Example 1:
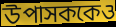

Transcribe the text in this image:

উপাসককেও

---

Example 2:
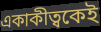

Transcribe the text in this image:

একাকীত্বকেই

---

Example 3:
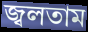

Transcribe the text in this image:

জ্বলতাম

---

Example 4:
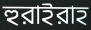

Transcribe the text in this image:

হুরাইরাহ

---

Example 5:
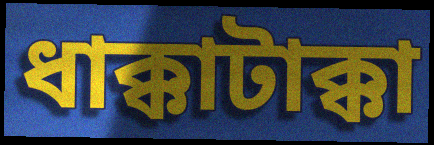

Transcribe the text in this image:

ধাক্কাটাক্কা